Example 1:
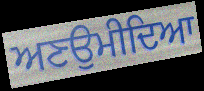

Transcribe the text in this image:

ਅਣਉਮੀਦਿਆ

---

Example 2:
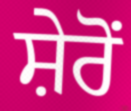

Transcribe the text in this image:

ਸ਼ੇਰੋਂ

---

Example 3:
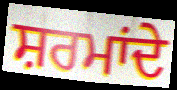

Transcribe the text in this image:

ਸ਼ਰਮਾਂਦੇ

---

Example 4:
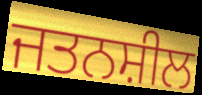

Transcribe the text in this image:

ਜਤਨਸ਼ੀਲ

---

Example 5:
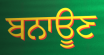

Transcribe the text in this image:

ਬਨਾਊਣ